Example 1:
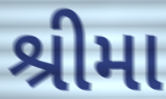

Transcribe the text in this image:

શ્રીમા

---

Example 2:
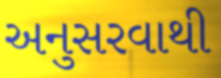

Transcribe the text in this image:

અનુસરવાથી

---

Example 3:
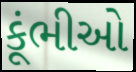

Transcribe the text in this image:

કૂંભીઓ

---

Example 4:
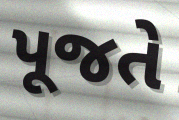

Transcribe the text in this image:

પૂજતે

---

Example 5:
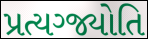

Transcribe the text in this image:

પ્રત્યગ્જ્યોતિ